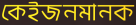
কেইজনমানক